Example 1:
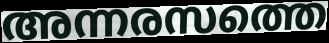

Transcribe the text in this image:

അന്നരസത്തെ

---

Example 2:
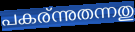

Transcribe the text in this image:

പകര്ന്നുതന്നതു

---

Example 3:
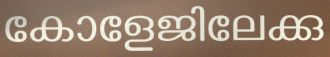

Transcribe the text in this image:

കോളേജിലേക്കു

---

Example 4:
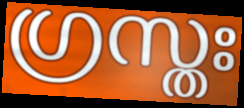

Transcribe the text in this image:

ഗ്രസ്തഃ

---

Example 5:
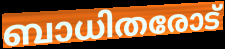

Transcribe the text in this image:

ബാധിതരോട്